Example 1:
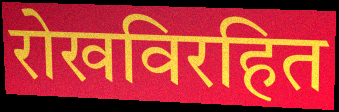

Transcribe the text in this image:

रोखविरहित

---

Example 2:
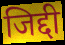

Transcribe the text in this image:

जिद्दी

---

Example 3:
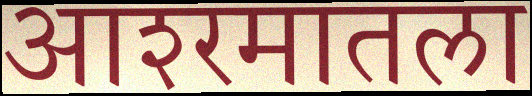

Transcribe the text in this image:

आश्रमातला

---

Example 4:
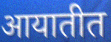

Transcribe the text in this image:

आयातीत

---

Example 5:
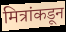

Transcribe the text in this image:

मित्रांकडून